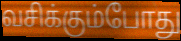
வசிக்கும்போது